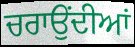
ਚਰਾਉਂਦੀਆਂ